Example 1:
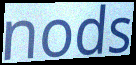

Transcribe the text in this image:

nods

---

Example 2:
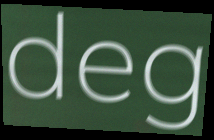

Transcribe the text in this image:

deg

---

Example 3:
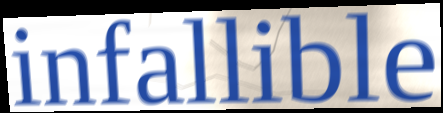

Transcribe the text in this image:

infallible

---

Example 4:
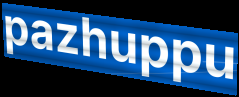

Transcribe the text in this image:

pazhuppu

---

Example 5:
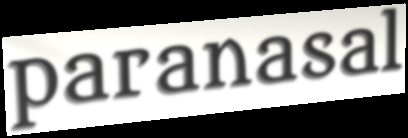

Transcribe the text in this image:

paranasal